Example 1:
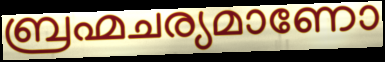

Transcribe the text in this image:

ബ്രഹ്മചര്യമാണോ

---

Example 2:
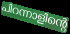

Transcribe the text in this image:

പിറന്നാളിന്റെ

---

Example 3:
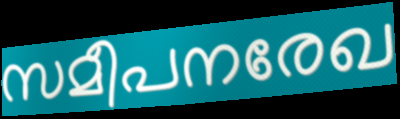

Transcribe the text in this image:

സമീപനരേഖ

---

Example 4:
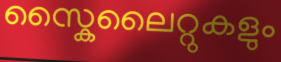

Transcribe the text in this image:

സ്കൈലൈറ്റുകളും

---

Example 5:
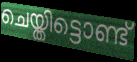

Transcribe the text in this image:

ചെയ്തിട്ടൊണ്ട്